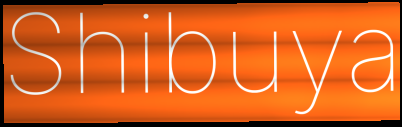
Shibuya